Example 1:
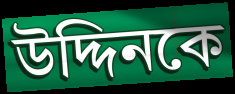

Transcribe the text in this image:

উদ্দিনকে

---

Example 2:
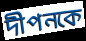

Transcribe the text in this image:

দীপনকে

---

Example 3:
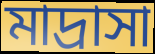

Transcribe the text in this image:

মাদ্রাসা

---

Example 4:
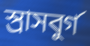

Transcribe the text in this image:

স্ত্রাসবুর্গ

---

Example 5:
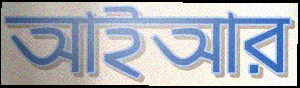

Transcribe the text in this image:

আইআর